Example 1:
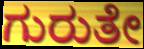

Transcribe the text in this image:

ಗುರುತೇ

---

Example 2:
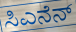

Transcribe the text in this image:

ಸಿಎನೆನ್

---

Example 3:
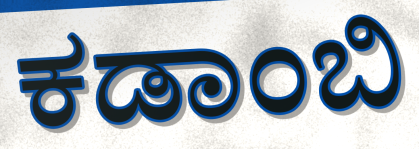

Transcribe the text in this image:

ಕಡಾಂಬಿ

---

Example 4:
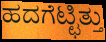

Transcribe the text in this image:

ಹದಗೆಟ್ಟಿತ್ತು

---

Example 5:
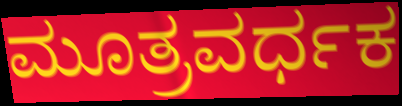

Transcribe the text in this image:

ಮೂತ್ರವರ್ಧಕ